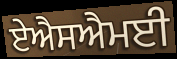
ਏਐਸਐਮਈ